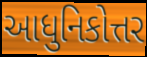
આધુનિકોત્તર